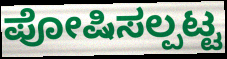
ಪೋಷಿಸಲ್ಪಟ್ಟ